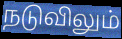
நடுவிலும்